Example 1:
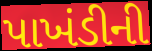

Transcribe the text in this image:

પાખંડીની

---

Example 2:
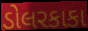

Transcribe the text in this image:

ડોલરકાકા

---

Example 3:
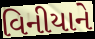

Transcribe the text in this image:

વિનીયાને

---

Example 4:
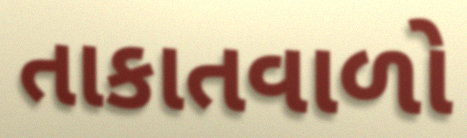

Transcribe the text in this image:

તાકાતવાળો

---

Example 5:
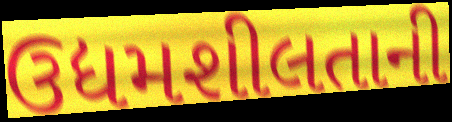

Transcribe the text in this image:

ઉદ્યમશીલતાની